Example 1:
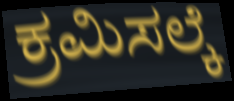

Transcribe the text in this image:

ಕ್ರಮಿಸಲ್ಕೆ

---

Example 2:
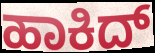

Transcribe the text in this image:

ಹಾಕಿದ್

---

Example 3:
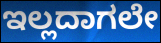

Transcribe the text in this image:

ಇಲ್ಲದಾಗಲೇ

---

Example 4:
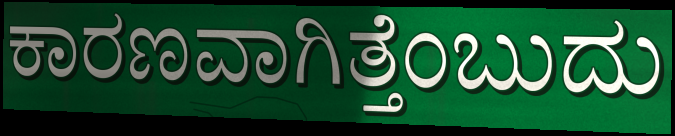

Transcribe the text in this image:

ಕಾರಣವಾಗಿತ್ತೆಂಬುದು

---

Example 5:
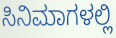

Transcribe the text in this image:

ಸಿನಿಮಾಗಳಲ್ಲಿ